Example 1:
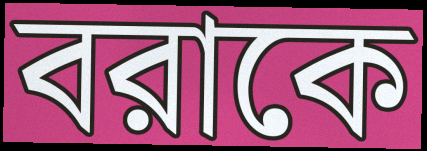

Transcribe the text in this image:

বরাকে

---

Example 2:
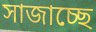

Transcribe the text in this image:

সাজাচ্ছে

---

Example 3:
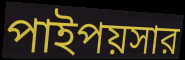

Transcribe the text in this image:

পাইপয়সার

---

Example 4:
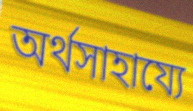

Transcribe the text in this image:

অর্থসাহায্যে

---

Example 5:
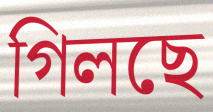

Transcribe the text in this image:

গিলছে